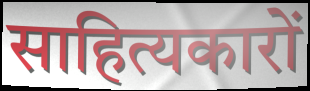
साहित्यकारों